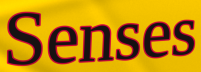
Senses